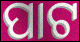
ପାଟ